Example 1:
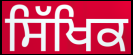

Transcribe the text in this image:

ਸਿੱਖਿਕ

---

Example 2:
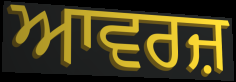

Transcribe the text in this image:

ਆਵਰਜ਼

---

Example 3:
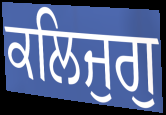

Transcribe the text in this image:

ਕਲਿਜੁਗੁ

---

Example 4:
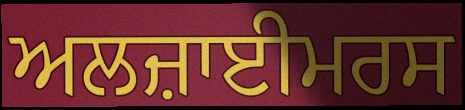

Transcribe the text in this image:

ਅਲਜ਼ਾਈਮਰਸ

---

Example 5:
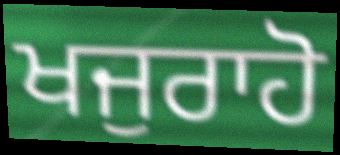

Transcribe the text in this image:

ਖਜੁਰਾਹੋ